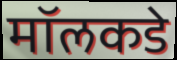
मॉलकडे